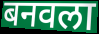
बनवला